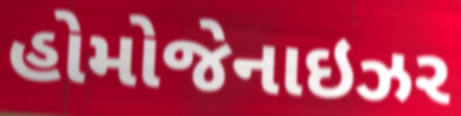
હોમોજેનાઇઝર